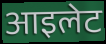
आइलेट